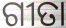
ଗୀତା